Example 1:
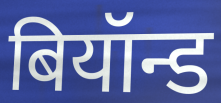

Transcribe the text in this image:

बियॉन्ड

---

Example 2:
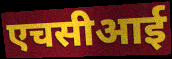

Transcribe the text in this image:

एचसीआई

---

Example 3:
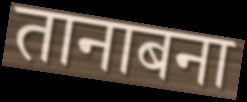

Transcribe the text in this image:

तानाबना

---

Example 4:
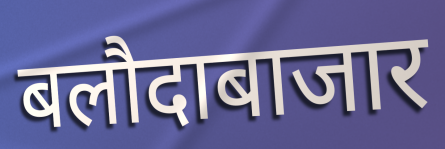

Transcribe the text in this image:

बलौदाबाजार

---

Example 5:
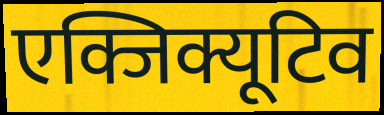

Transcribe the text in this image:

एक्जिक्यूटिव